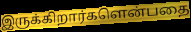
இருக்கிறார்களென்பதை